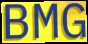
BMG